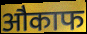
औकाफ